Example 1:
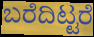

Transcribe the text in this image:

ಬರೆದಿಟ್ಟರೆ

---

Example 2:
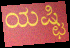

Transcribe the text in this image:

ಯಷ್ಟಿ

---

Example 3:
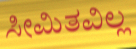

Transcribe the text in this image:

ಸೀಮಿತವಿಲ್ಲ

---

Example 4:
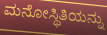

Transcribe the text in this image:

ಮನೋಸ್ಥಿತಿಯನ್ನು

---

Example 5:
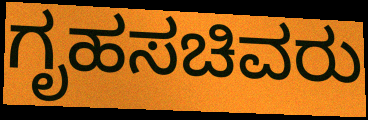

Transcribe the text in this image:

ಗೃಹಸಚಿವರು